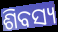
ଶିବସ୍ଯ